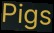
Pigs